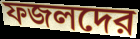
ফজলদের